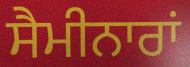
ਸੈਮੀਨਾਰਾਂ